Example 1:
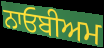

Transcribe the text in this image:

ਨਾਓਬੀਅਮ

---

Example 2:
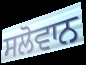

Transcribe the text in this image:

ਸਲੋਵਾਨ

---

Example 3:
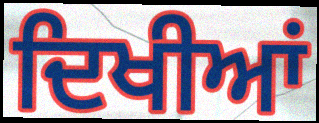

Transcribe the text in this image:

ਦਿਖੀਆਂ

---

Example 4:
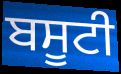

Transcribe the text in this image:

ਬਸੂਟੀ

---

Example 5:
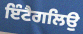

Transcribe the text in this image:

ਇੰਟੈਗਲਿਉ